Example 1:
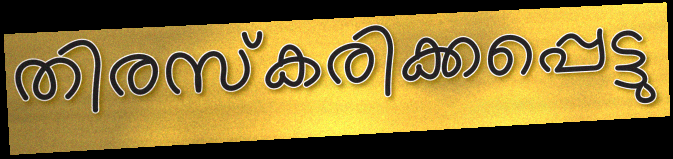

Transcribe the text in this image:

തിരസ്കരിക്കപ്പെട്ടു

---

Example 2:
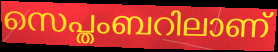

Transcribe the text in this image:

സെപ്തംബറിലാണ്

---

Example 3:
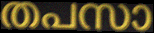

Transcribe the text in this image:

തപസാ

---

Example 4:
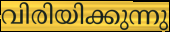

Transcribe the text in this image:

വിരിയിക്കുന്നു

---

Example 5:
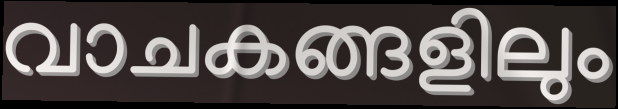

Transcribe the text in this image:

വാചകങ്ങളിലും